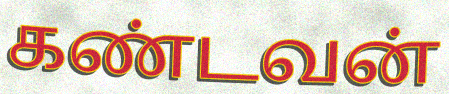
கண்டவன்